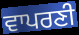
ਵਾਪਰਣੀ